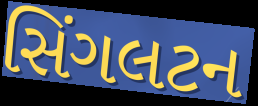
સિંગલટન